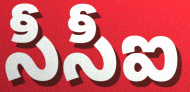
సీసీఐ